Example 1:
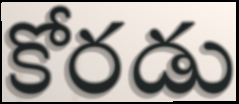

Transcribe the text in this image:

కోరడు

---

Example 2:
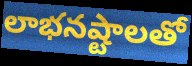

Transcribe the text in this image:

లాభనష్టాలతో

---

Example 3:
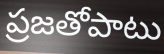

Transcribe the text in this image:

ప్రజతోపాటు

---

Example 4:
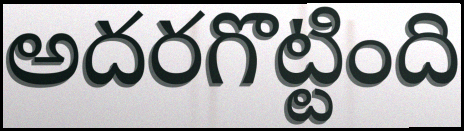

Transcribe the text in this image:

అదరగొట్టింది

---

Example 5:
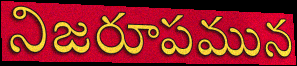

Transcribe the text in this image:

నిజరూపమున